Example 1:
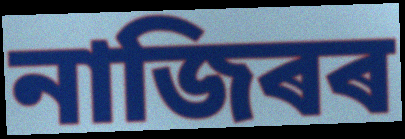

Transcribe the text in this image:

নাজিৰৰ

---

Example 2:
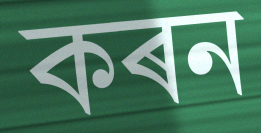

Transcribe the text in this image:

কৰন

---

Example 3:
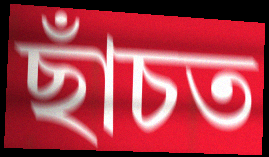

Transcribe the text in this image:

ছাঁচত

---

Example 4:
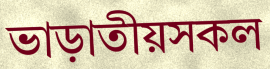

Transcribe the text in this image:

ভাড়াতীয়সকল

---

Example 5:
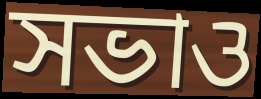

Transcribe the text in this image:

সভাও